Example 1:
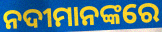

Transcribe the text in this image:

ନଦୀମାନଙ୍କରେ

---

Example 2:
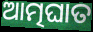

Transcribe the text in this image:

ଆତ୍ମଘାତ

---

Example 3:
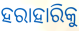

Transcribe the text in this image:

ହରାହାରିକୁ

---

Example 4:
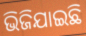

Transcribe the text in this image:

ଭିଜିଯାଇଛି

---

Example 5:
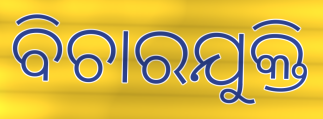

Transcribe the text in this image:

ବିଚାରଯୁକ୍ତି